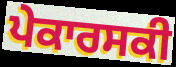
ਪੇਕਾਰਸਕੀ